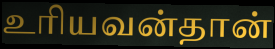
உரியவன்தான்